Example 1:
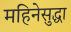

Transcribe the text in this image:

महिनेसुद्धा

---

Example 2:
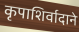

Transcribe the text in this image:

कृपाशिर्वादाने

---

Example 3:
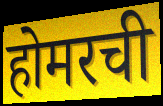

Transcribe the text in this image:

होमरची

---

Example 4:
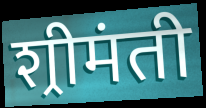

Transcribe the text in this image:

श्रीमंती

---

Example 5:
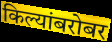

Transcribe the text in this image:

किल्यांबरोबर